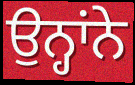
ਉਨ੍ਹਾਂਨੇ